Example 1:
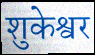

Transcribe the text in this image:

शुकेश्वर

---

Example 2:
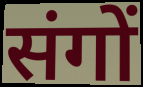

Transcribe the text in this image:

संगों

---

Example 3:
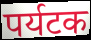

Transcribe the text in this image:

पर्यटक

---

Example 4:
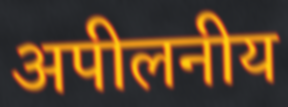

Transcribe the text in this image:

अपीलनीय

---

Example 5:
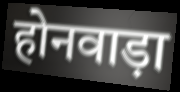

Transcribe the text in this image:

होनवाड़ा